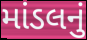
માંડલનું